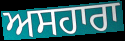
ਅਸਹਾਰਾ